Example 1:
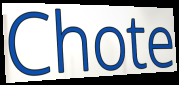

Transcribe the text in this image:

Chote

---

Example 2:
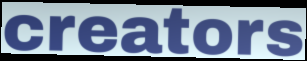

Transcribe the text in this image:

creators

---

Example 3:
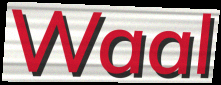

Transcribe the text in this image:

Waal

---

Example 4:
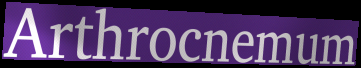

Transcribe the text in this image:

Arthrocnemum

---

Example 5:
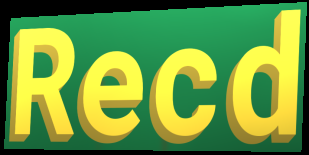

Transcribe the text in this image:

Recd